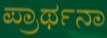
ಪ್ರಾರ್ಥನಾ